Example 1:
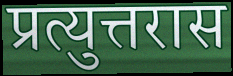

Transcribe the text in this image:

प्रत्युत्तरास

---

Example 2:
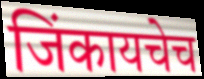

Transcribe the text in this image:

जिंकायचेच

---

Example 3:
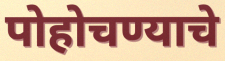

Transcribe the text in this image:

पोहोचण्याचे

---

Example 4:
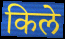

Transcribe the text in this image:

किले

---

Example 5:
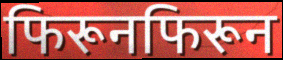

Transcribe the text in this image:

फिरूनफिरून